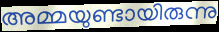
അമ്മയുണ്ടായിരുന്നു